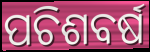
ପଚିଶବର୍ଷ